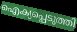
ഐക്യപ്പെടുത്തി